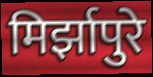
मिर्झापुरे